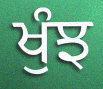
ਖੁੰਝ